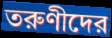
তরুণীদের